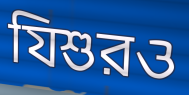
যিশুরও